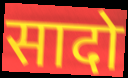
सादो